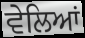
ਵੇਲਿਆਂ